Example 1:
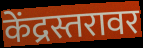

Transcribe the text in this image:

केंद्रस्तरावर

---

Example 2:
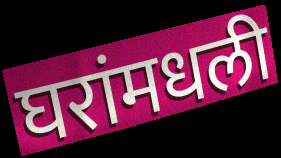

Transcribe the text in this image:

घरांमधली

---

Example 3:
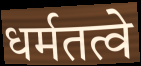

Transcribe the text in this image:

धर्मतत्वे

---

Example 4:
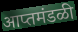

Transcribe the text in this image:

आप्तमंडळी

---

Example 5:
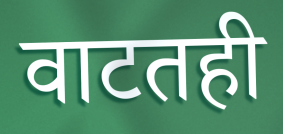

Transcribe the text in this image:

वाटतही